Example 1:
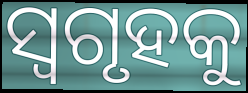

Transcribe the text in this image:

ସ୍ୱଗୃହକୁ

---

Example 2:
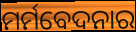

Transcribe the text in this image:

ମର୍ମବେଦନାର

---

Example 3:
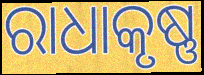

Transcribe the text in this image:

ରାଧାକୃଷ୍ଣ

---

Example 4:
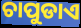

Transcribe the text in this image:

ଚାପୁଡାଏ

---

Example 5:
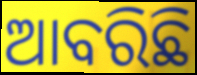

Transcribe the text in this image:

ଆବରିଛି